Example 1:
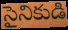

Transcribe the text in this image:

సైనికుడి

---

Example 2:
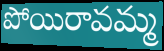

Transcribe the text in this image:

పోయిరావమ్మ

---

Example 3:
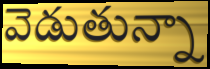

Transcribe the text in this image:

వెడుతున్నా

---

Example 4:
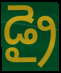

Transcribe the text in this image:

డ్రై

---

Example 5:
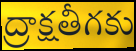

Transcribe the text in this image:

ద్రాక్షతీగకు